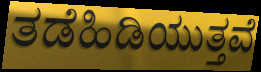
ತಡೆಹಿಡಿಯುತ್ತವೆ